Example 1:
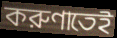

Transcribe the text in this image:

করুণাতেই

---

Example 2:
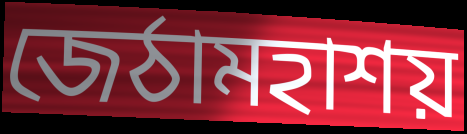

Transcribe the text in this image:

জেঠামহাশয়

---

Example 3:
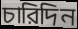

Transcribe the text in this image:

চারিদিন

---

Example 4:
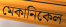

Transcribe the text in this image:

মেকানিকেল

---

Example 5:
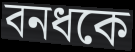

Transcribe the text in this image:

বনধকে